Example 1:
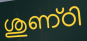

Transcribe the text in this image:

ശുണ്‌ഠി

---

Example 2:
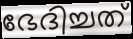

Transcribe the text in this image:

ഭേദിച്ചത്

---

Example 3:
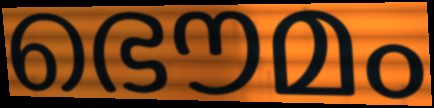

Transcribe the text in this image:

ഭൌമം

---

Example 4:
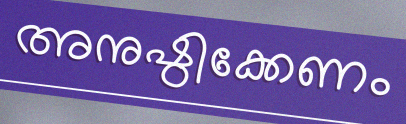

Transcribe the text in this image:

അനുഷ്ഠിക്കേണം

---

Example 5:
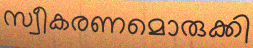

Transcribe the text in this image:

സ്വീകരണമൊരുക്കി